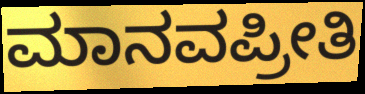
ಮಾನವಪ್ರೀತಿ